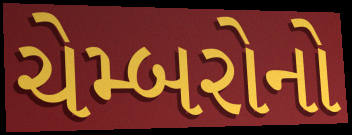
ચેમ્બરોનો